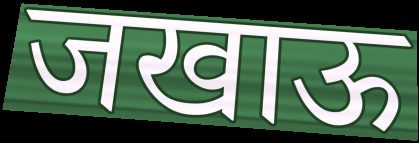
जखाऊ